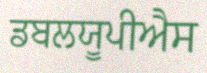
ਡਬਲਯੂਪੀਐਸ